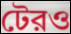
টেরও